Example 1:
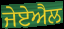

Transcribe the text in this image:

ਜੇਏਐਲ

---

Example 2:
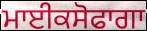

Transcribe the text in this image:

ਮਾਈਕਸੋਫਾਗਾ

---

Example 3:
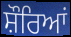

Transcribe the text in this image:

ਸ਼ੌਰਿਆਂ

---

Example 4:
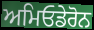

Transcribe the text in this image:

ਅਮਿਓਡੇਰੋਨ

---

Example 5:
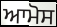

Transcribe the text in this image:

ਆਮੋਸ